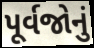
પૂર્વજોનું